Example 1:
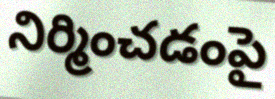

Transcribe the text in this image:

నిర్మించడంపై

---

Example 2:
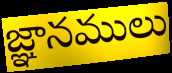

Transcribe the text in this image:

జ్ఞానములు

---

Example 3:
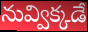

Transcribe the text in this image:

నువ్విక్కడే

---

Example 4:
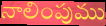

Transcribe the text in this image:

నాలింపుము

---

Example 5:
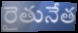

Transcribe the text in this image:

రైతునేత